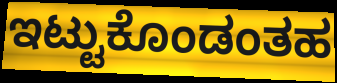
ಇಟ್ಟುಕೊಂಡಂತಹ